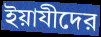
ইয়াযীদের